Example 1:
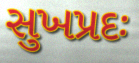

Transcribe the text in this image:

સુખપ્રદઃ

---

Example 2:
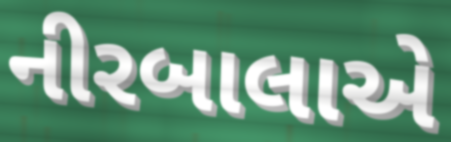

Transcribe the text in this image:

નીરબાલાએ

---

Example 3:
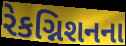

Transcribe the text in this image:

રેકગ્નિશનના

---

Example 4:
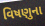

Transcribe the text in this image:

વિષણુના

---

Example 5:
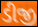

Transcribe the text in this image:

ડીજી